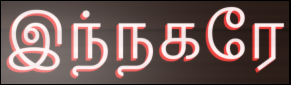
இந்நகரே